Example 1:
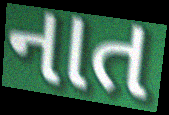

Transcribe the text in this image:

નાત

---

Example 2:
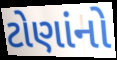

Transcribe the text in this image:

ટોણાંનો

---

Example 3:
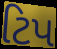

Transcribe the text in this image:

ટિપ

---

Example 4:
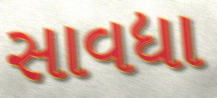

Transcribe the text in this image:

સાવદ્યા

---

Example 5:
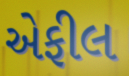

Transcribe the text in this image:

એફીલ